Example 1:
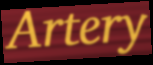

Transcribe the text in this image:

Artery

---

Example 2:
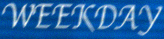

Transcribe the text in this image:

WEEKDAY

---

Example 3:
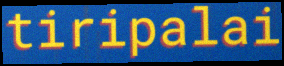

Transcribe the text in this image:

tiripalai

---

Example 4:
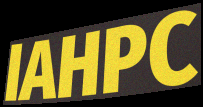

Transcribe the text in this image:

IAHPC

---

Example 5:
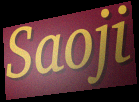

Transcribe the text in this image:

Saoji